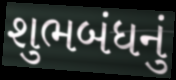
શુભબંધનું